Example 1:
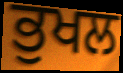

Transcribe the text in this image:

ਭੁਖਲ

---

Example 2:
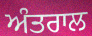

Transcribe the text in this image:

ਅੰਤਰਾਲ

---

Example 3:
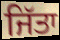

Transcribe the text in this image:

ਜਿੱਤਾ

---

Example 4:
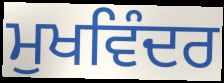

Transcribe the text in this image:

ਮੁਖਵਿੰਦਰ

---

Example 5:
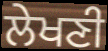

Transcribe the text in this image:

ਲੇਖਣੀ